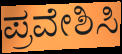
ಪ್ರವೇಶಿಸಿ